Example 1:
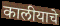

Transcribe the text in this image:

कालीयाचे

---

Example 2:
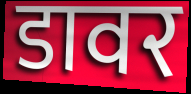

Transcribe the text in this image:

डावर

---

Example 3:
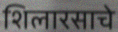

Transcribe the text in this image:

शिलारसाचे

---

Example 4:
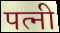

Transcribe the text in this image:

पत्नी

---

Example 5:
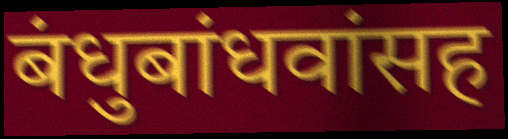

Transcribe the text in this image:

बंधुबांधवांसह